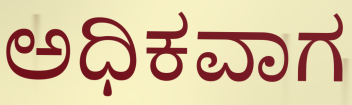
ಅಧಿಕವಾಗ